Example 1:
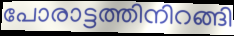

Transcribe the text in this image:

പോരാട്ടത്തിനിറങ്ങി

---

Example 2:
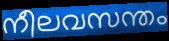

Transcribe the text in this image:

നീലവസന്തം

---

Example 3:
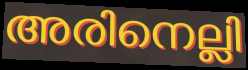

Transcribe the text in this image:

അരിനെല്ലി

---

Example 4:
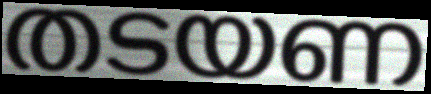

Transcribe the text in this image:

തടയണ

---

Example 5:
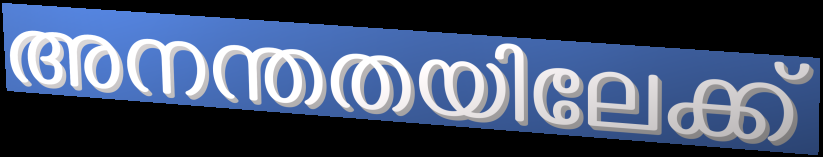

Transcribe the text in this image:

അനന്തതയിലേക്ക്